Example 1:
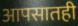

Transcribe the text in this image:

आपसातही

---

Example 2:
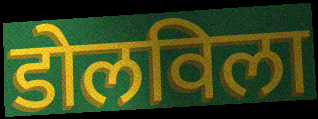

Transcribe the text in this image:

डोलविला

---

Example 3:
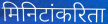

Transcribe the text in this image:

मिनिटांकरिता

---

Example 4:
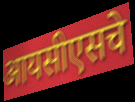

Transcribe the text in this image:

आयसीएसचे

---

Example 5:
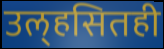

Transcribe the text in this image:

उल्हसितही